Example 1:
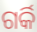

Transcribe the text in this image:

ଗର୍କି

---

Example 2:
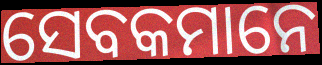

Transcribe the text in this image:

ସେବକମାନେ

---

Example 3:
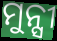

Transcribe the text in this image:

ମୁନ୍ସୀ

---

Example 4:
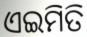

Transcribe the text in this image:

ଏଇମିତି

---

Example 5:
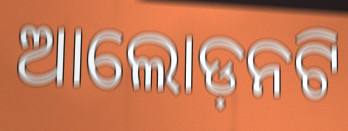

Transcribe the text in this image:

ଆଲୋଡ଼ନଟି